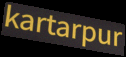
kartarpur